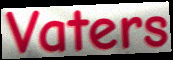
Vaters